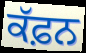
ਕੱਫ਼ਨ